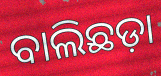
ବାଲିଛଡ଼ା